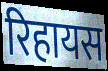
रिहायस